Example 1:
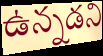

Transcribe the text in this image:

ఉన్నడని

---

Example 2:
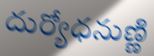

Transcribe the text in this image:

దుర్యోధనుణ్ణి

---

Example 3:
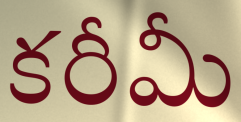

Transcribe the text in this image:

కరీమీ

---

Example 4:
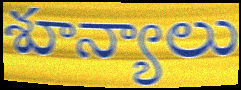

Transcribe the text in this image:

శూన్యాలు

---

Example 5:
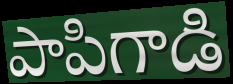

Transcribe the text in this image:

పాపిగాడి